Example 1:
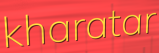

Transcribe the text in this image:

kharatar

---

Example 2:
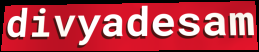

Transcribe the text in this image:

divyadesam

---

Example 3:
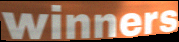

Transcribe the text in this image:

winners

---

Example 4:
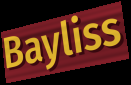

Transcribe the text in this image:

Bayliss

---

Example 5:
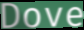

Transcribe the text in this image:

Dove